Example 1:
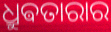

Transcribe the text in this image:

ଧ୍ରୁଵତାରାର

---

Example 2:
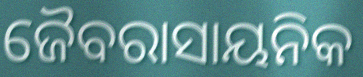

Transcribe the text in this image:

ଜୈବରାସାୟନିକ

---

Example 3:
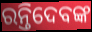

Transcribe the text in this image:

ରନ୍ତିଦେବଙ୍କ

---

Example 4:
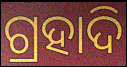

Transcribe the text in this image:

ଗ୍ରହାଦି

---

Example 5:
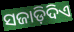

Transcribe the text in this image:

ସଜାଡ଼ିଦିଏ